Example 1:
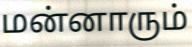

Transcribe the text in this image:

மன்னாரும்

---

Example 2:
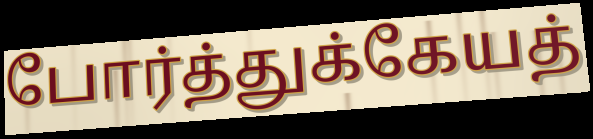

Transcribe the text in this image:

போர்த்துக்கேயத்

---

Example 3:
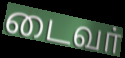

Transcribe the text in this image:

டைவர்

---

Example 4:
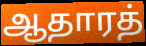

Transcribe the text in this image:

ஆதாரத்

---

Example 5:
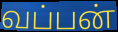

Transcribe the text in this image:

வப்பன்